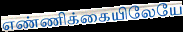
எண்ணிக்கையிலேயே